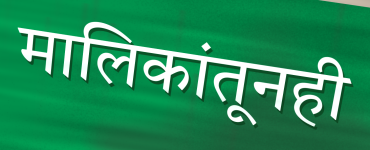
मालिकांतूनही